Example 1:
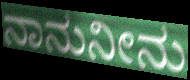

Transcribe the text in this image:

ನಾನುನೀನು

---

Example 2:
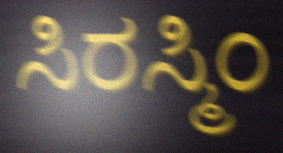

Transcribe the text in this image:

ಸಿರಸ್ಮಿಂ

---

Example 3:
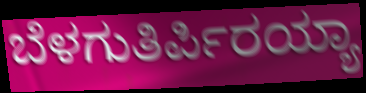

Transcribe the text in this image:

ಬೆಳಗುತಿರ್ಪಿರಯ್ಯಾ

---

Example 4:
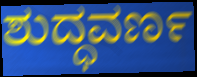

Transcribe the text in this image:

ಶುದ್ಧವರ್ಣ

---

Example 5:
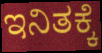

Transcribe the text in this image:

ಇನಿತಕ್ಕೆ